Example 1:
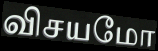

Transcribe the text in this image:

விசயமோ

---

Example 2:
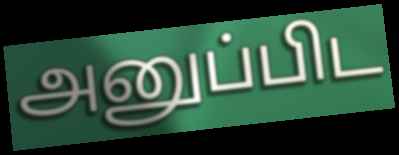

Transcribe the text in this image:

அனுப்பிட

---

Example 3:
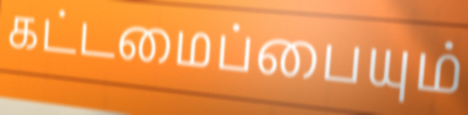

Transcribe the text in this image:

கட்டமைப்பையும்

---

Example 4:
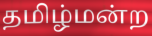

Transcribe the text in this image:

தமிழ்மன்ற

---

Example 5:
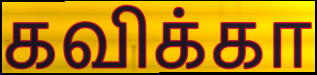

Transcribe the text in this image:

கவிக்கா